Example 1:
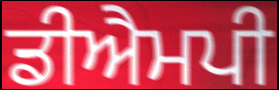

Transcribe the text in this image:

ਡੀਐਮਪੀ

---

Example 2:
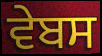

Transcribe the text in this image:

ਵੇਬਸ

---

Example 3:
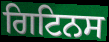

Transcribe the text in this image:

ਗਿਟਿਨਸ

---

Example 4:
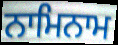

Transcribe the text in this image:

ਨਾਮਿਨਾਮ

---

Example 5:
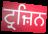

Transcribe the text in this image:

ਟ੍ਰਜ਼ਿਨ